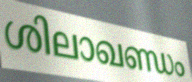
ശിലാഖണ്ഡം